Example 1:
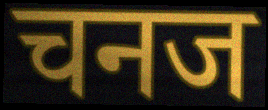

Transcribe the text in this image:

चनज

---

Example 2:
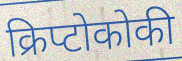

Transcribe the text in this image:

क्रिप्टोकोकी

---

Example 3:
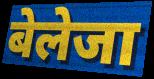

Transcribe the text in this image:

बेलेजा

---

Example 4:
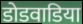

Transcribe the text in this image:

डोडवाडिया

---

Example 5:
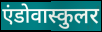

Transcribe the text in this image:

एंडोवास्कुलर